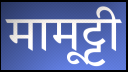
मामूट्टी